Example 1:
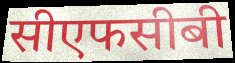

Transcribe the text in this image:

सीएफसीबी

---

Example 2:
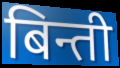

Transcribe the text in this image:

बिन्ती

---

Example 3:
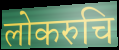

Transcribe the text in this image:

लोकरुचि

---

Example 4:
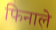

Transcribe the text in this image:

फिनाले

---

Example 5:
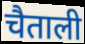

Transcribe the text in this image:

चैताली